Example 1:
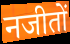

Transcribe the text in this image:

नजीतों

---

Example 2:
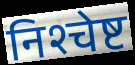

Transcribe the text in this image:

निश्चेष्ट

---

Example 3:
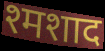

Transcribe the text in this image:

श्मशाद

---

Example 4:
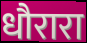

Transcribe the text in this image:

धौरारा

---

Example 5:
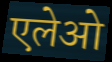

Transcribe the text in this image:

एलेओ